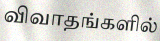
விவாதங்களில்